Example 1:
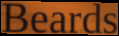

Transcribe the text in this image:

Beards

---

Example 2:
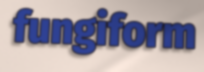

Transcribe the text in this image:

fungiform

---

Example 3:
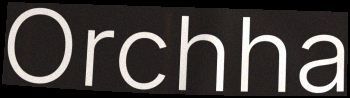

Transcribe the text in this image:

Orchha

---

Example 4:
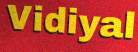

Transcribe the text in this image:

Vidiyal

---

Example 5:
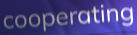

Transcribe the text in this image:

cooperating